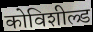
कोविशील्ड